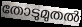
തോടുമുതൽ